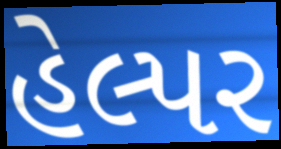
હેલ્પર